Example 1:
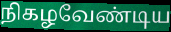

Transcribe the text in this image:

நிகழவேண்டிய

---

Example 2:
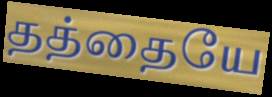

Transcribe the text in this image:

தத்தையே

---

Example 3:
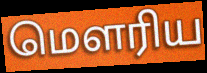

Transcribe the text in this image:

மௌரிய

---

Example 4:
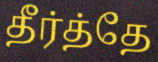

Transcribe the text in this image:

தீர்த்தே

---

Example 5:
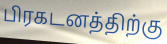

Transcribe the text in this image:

பிரகடனத்திற்கு